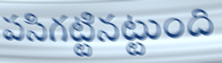
పసిగట్టినట్టుంది